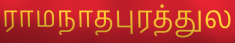
ராமநாதபுரத்துல